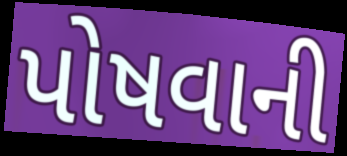
પોષવાની